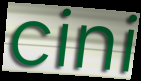
cini